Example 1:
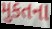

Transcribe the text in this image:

મુકતના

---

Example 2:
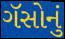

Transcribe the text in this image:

ગૅસોનું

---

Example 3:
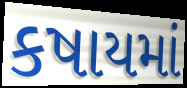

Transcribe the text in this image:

કષાયમાં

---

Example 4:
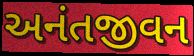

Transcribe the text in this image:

અનંતજીવન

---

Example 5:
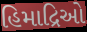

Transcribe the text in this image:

હિમાદ્રિઓ